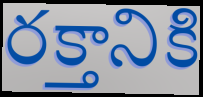
రక్తానికి